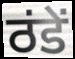
ठंडें